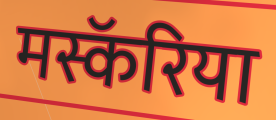
मस्कॅरिया